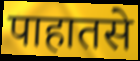
पाहातसे